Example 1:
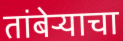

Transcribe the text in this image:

तांबेऱ्याचा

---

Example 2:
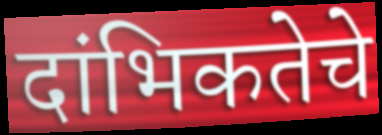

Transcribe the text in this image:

दांभिकतेचे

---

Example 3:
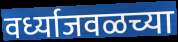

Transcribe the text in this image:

वर्ध्याजवळच्या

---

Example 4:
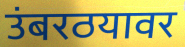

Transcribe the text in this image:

उंबरठयावर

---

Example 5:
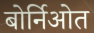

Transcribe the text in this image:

बोर्निओत